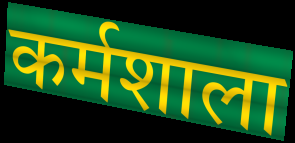
कर्मशाला